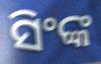
ସିଂଙ୍କ